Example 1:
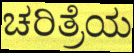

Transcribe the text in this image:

ಚರಿತ್ರೆಯ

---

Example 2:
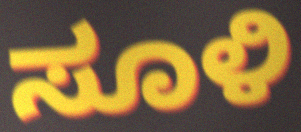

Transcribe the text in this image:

ಸೂಳಿ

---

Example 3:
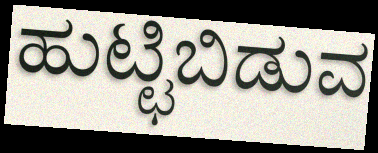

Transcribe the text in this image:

ಹುಟ್ಟಿಬಿಡುವ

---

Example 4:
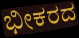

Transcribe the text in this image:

ಭೀಕರದ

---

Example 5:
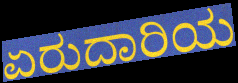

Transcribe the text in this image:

ಏರುದಾರಿಯ